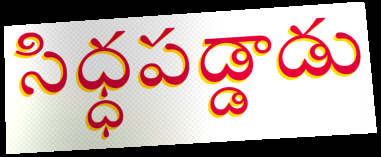
సిధ్ధపడ్డాడు